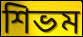
শিভম